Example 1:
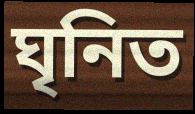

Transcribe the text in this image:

ঘৃনিত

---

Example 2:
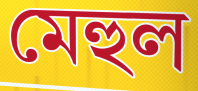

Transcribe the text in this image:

মেহুল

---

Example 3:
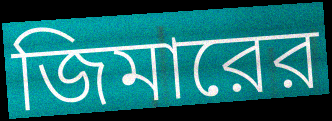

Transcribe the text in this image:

জিমারের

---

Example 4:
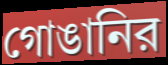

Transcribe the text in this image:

গোঙানির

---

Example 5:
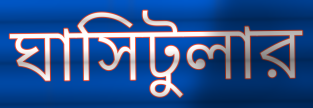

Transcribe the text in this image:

ঘাসিটুলার